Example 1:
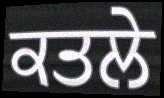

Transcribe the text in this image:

ਕਤਲੇ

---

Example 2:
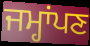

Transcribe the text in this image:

ਜਮ੍ਹਾਂਪਣ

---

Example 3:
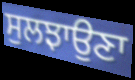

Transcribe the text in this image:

ਸੁਲਝਾਉਣਾ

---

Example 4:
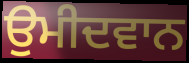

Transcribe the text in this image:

ਉਮੀਦਵਾਨ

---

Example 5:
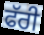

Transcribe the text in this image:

ਫੱਰੀ